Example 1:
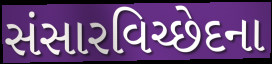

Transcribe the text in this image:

સંસારવિચ્છેદના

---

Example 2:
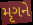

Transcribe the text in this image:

મૃગને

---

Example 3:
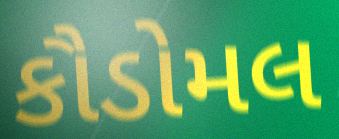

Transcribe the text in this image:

કૌડોમલ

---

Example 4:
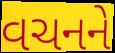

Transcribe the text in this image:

વચનને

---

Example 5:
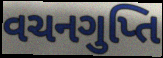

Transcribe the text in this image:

વચનગુપ્તિ